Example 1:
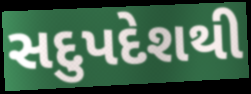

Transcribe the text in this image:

સદુપદેશથી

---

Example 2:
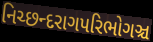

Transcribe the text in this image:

નિચ્છન્દરાગપરિભોગઞ્ચ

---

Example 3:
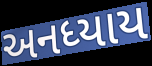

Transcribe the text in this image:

અનધ્યાય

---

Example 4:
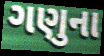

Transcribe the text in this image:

ગણુના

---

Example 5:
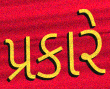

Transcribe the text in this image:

પ્રકારે